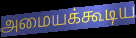
அமையக்கூடிய